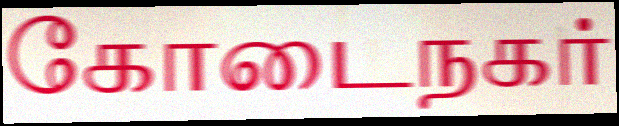
கோடைநகர்